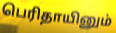
பெரிதாயினும்